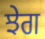
ਝੇਗ